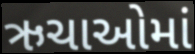
ઋચાઓમાં